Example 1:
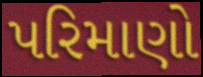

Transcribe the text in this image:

પરિમાણો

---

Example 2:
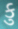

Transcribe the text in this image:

કુ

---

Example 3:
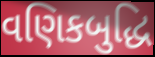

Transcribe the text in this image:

વણિકબુદ્ધિ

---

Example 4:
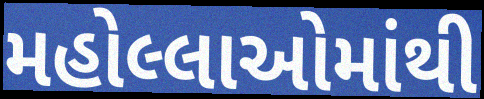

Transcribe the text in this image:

મહોલ્લાઓમાંથી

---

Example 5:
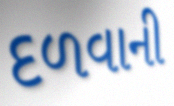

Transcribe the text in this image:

દળવાની